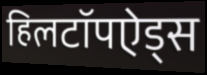
हिलटॉपऐड्स